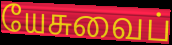
யேசுவைப்